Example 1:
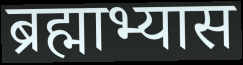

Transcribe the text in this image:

ब्रह्माभ्यास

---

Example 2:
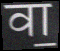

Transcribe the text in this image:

वा॒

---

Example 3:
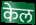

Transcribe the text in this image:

केल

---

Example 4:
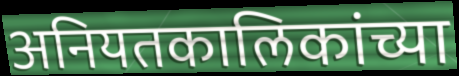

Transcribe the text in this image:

अनियतकालिकांच्या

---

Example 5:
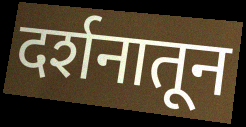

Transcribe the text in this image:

दर्शनातून